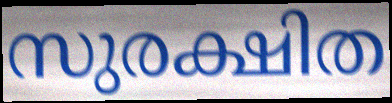
സുരക്ഷിത